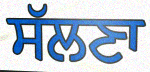
ਸੱਲਣਾ